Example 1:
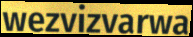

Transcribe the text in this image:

wezvizvarwa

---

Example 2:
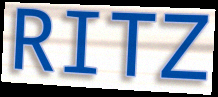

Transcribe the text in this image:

RITZ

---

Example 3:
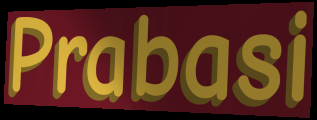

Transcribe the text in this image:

Prabasi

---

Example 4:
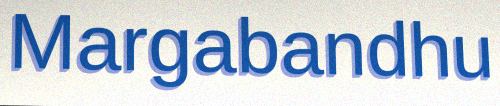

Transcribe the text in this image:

Margabandhu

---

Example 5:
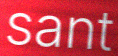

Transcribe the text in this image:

sant